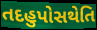
તદહુપોસથેતિ